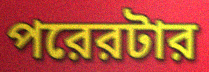
পরেরটার